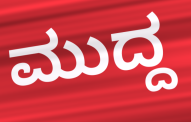
ಮುದ್ದ